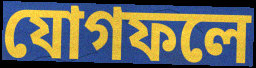
যোগফলে